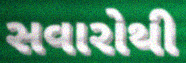
સવારોથી